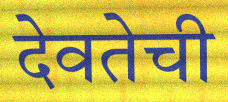
देवतेची